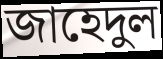
জাহেদুল